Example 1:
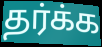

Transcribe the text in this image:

தர்க்க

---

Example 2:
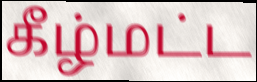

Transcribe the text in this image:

கீழ்மட்ட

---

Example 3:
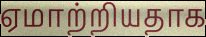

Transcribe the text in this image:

ஏமாற்றியதாக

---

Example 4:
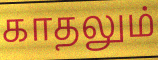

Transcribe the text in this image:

காதலும்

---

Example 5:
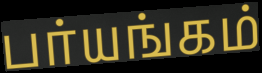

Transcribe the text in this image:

பர்யங்கம்